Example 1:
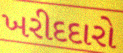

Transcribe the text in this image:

ખરીદદારો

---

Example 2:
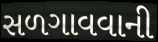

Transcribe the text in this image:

સળગાવવાની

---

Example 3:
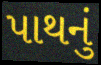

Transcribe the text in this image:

પાથનું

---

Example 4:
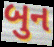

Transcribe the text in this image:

બુન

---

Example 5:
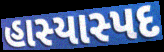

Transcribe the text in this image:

હાસ્યાસ્પદ